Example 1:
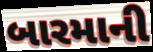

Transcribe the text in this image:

બારમાની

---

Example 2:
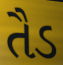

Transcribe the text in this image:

તૈડ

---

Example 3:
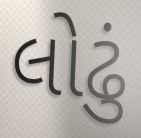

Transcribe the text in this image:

લોઢું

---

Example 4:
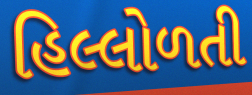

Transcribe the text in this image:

હિલ્લોળતી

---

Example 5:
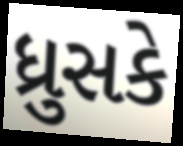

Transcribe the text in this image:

ધ્રુસકે